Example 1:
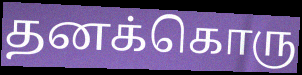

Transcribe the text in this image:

தனக்கொரு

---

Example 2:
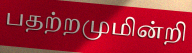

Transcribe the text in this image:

பதற்றமுமின்றி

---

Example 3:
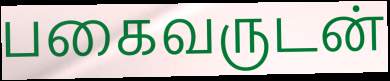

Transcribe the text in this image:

பகைவருடன்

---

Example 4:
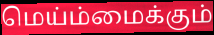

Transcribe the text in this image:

மெய்ம்மைக்கும்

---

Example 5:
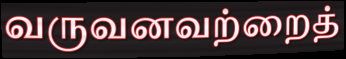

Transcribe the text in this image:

வருவனவற்றைத்